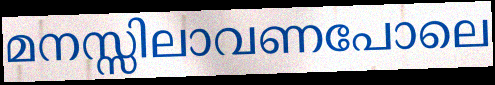
മനസ്സിലാവണപോലെ